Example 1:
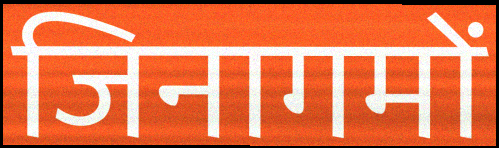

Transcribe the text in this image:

जिनागमों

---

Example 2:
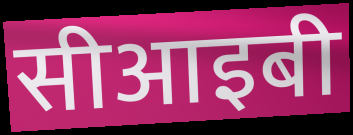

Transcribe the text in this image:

सीआइबी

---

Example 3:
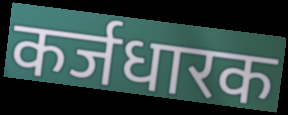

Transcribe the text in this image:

कर्जधारक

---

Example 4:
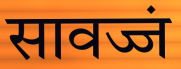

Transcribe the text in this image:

सावज्जं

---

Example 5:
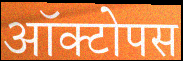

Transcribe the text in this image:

ऑक्टोपस